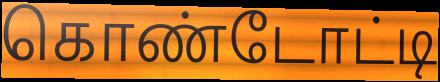
கொண்டோட்டி